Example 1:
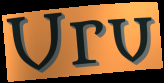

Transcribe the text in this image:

Uru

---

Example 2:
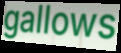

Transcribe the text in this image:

gallows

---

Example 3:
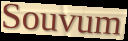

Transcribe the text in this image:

Souvum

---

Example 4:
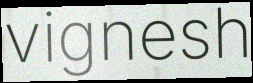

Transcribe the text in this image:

vignesh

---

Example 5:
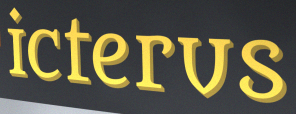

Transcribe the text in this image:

icterus